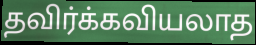
தவிர்க்கவியலாத